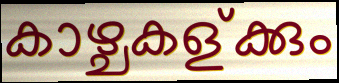
കാഴ്ചകള്ക്കും